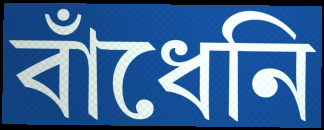
বাঁধেনি